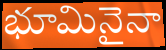
భూమినైనా